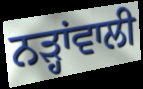
ਨੜ੍ਹਾਂਵਾਲੀ